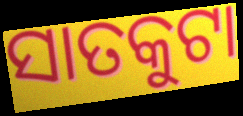
ସାତକୁଟା